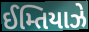
ઈમ્તિયાઝે